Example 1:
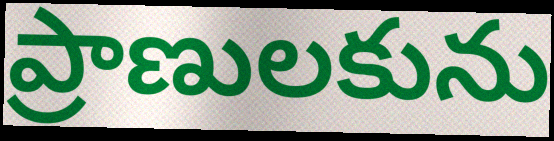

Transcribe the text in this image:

ప్రాణులకును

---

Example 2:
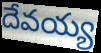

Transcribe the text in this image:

దేవయ్య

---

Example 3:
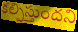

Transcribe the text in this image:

కల్పిస్తుందని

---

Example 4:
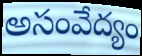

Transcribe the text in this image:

అసంవేద్యం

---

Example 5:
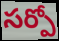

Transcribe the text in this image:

సర్పో